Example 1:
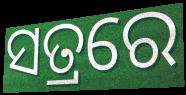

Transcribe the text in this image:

ସତ୍ରରେ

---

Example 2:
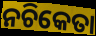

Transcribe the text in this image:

ନଚିକେତା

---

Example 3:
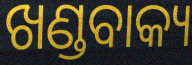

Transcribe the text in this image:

ଖଣ୍ଡବାକ୍ୟ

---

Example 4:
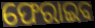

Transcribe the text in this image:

ଫେରାଇବ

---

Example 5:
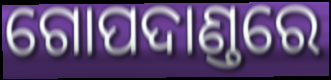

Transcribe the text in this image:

ଗୋପଦାଣ୍ଡରେ